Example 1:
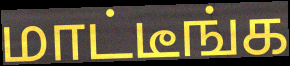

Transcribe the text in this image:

மாட்டீங்க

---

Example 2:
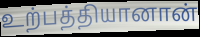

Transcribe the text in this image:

உற்பத்தியானான்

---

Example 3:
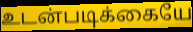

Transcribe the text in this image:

உடன்படிக்கையே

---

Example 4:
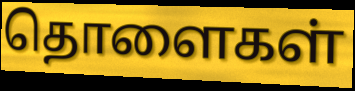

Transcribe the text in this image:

தொளைகள்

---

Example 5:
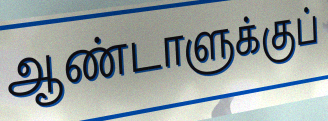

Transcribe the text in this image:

ஆண்டாளுக்குப்